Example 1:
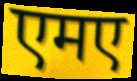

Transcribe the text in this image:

एमए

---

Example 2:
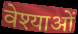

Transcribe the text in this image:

वेश्याओं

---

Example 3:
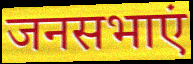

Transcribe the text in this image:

जनसभाएं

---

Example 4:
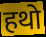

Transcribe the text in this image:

हथो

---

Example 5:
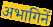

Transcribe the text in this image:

अभागिनें